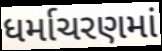
ધર્માચરણમાં